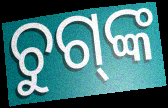
ଚୁଗ୍‌ଙ୍କ